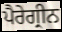
ਪੈਰੇਗ੍ਰੀਨ